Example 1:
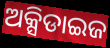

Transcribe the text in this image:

ଅକ୍ସିଡାଇଜ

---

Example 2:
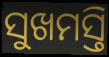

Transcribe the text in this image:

ସୁଖମସ୍ତି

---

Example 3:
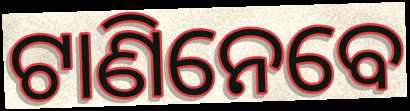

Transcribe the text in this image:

ଟାଣିନେବେ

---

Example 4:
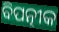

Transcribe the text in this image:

ବିପତ୍ନୀକ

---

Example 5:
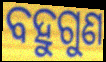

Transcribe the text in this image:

ବହୁଗୁଣ